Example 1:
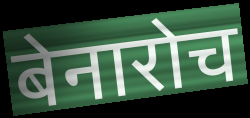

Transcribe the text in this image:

बेनारोच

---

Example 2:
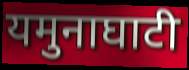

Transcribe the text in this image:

यमुनाघाटी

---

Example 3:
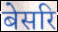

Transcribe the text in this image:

बेसरि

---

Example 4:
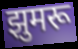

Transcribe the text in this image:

झुमरू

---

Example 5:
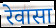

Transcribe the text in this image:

रेवासा